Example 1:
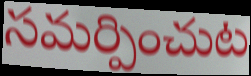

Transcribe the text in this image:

సమర్పించుట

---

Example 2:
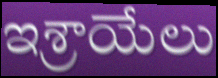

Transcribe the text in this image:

ఇశ్రాయేలు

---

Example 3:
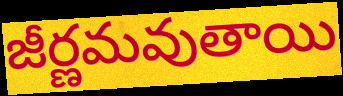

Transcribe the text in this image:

జీర్ణమవుతాయి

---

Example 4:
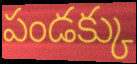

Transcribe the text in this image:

పండక్కు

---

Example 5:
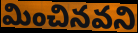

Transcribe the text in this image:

మించినవని